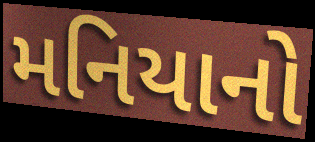
મનિયાનો